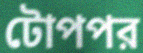
টোপপর